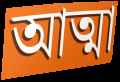
আত্মা